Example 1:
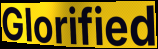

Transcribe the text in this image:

Glorified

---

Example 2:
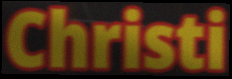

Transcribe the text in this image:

Christi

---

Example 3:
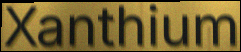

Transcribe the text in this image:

Xanthium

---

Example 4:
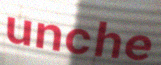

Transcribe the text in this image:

unche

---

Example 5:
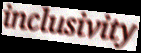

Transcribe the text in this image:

inclusivity